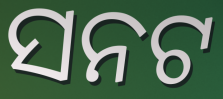
ସନଟ